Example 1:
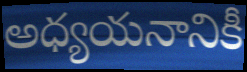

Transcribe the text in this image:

అధ్యయనానికీ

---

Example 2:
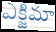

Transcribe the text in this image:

ఎక్జిమా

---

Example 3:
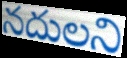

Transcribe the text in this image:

నదులని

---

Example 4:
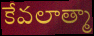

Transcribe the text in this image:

కేవలాత్మా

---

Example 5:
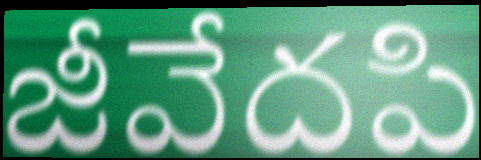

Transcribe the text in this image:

జీవేదపి